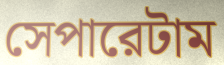
সেপারেটাম